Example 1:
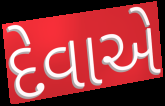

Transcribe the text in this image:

દેવાએ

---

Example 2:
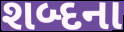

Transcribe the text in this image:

શબ્દના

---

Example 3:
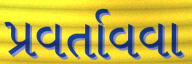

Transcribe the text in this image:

પ્રવર્તાવવા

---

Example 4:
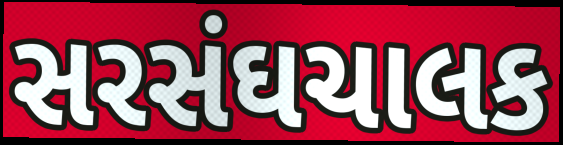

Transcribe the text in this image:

સરસંઘચાલક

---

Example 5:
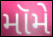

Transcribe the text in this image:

મૉમે